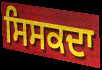
ਸਿਸਕਦਾ